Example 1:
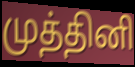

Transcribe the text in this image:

முத்தினி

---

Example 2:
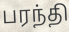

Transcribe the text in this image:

பரந்தி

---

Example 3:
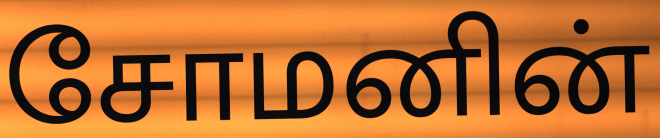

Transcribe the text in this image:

சோமனின்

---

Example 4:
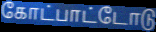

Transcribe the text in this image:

கோட்பாட்டோடு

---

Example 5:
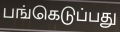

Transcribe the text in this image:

பங்கெடுப்பது